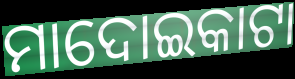
ମାଦୋଇକାଟା